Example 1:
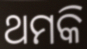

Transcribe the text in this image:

ଥମକି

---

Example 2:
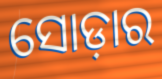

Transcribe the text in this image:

ସୋଡ଼ାର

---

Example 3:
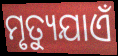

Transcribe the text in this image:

ମୃତ୍ୟୁଯାଏଁ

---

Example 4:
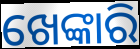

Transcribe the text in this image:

ଖେଙ୍କାରି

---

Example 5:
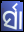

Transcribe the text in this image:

ର୍ସା